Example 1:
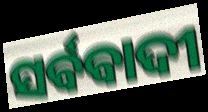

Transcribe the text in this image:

ସର୍ବବାଦୀ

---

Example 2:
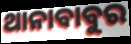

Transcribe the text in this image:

ଥାନାବାବୁର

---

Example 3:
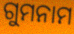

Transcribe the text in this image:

ଗୁମନାମ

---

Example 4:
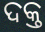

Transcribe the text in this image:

ଦକ୍ତ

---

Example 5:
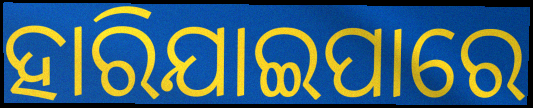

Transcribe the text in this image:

ହାରିଯାଇପାରେ